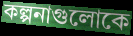
কল্পনাগুলোকে